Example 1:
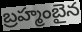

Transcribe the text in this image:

బ్రహ్మంబైన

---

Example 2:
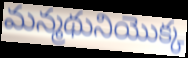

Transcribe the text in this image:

మన్మథునియొక్క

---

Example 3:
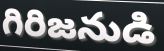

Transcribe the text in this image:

గిరిజనుడి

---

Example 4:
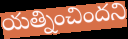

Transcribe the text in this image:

యత్నించిందని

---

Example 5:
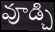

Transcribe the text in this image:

వూడ్చి